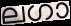
ലഗാ